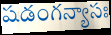
షడంగన్యాసః